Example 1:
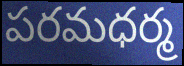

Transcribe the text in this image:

పరమధర్మ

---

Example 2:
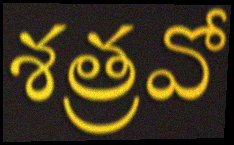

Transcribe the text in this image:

శత్రవో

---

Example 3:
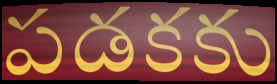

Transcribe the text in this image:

పడకకు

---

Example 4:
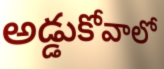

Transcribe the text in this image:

అడ్డుకోవాలో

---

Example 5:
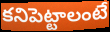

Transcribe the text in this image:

కనిపెట్టాలంటే